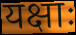
यक्षाः